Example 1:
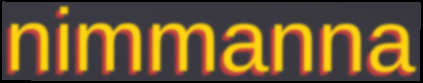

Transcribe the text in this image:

nimmanna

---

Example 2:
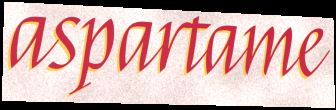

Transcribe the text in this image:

aspartame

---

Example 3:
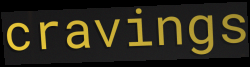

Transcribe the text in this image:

cravings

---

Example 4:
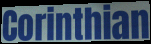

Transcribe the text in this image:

Corinthian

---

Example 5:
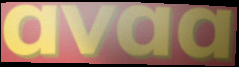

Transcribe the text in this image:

avaa